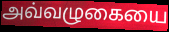
அவ்வழுகையை